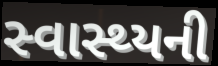
સ્વાસ્થ્યની